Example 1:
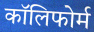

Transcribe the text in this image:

कॉलिफोर्म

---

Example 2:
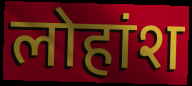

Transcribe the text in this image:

लोहांश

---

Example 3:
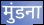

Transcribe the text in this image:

मुंडना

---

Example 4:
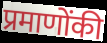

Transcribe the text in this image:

प्रमाणोंकी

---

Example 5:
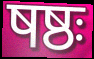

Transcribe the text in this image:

षष्ठः